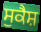
ਸੁਕੈਸ਼